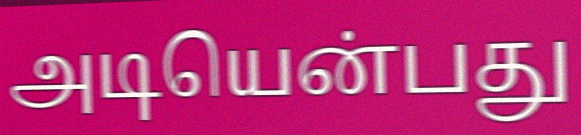
அடியென்பது